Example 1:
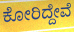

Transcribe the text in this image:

ಕೋರಿದ್ದೇವೆ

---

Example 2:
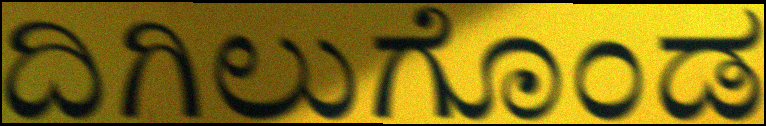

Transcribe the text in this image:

ದಿಗಿಲುಗೊಂಡ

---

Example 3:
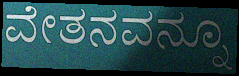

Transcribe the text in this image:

ವೇತನವನ್ನೂ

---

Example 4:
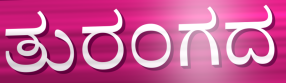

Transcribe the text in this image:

ತುರಂಗದ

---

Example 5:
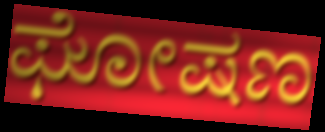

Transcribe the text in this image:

ಘೋಷಣ